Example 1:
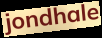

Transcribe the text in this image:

jondhale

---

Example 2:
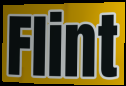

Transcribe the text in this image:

Flint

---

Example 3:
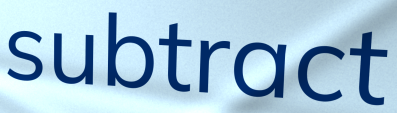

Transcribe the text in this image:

subtract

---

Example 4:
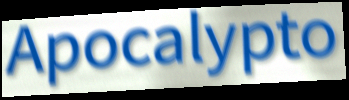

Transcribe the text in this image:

Apocalypto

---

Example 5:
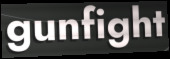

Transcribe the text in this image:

gunfight